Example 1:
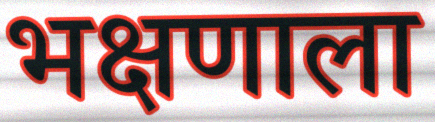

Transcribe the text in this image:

भक्षणाला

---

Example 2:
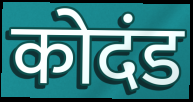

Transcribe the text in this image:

कोदंड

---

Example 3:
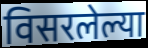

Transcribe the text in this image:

विसरलेल्या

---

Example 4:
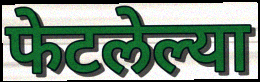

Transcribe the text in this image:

फेटलेल्या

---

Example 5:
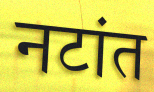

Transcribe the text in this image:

नटांत